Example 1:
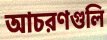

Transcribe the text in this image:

আচরণগুলি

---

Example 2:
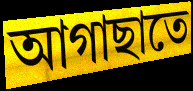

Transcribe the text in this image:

আগাছাতে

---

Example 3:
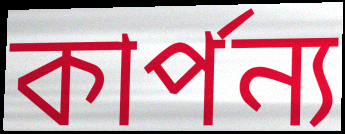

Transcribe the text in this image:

কার্পন্য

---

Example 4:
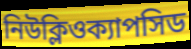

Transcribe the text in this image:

নিউক্লিওক্যাপসিড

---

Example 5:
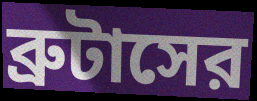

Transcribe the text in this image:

ব্রুটাসের